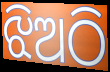
ଝିଅଠି